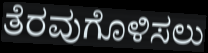
ತೆರವುಗೊಳಿಸಲು